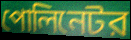
পোলিনেটর